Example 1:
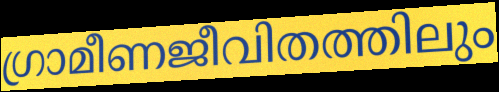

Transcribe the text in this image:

ഗ്രാമീണജീവിതത്തിലും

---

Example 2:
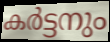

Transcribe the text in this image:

കർട്ടനും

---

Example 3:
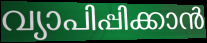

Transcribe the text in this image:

വ്യാപിപ്പിക്കാൻ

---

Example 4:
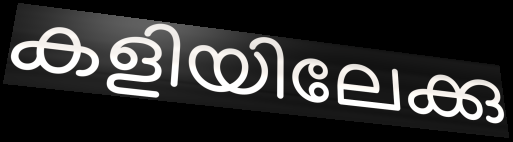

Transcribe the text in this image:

കളിയിലേക്കു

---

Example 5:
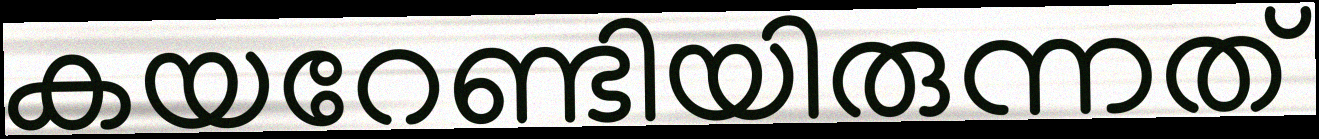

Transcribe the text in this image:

കയറേണ്ടിയിരുന്നത്